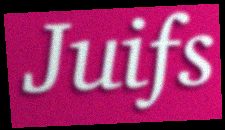
Juifs